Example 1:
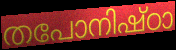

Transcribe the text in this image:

തപോനിഷ്ഠാ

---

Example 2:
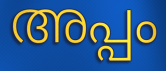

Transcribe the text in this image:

അപ്പം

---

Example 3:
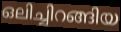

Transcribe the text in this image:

ഒലിച്ചിറങ്ങിയ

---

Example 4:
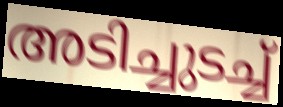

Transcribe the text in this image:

അടിച്ചുടച്ച്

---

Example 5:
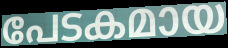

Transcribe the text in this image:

പേടകമായ